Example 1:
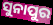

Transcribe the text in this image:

ସୁନାପୁର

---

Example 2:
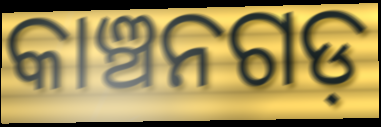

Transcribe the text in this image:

କାଞ୍ଚନଗଡ଼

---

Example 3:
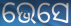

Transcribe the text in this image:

ଭେସେ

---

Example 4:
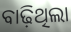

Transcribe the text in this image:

ବାଢ଼ିଥିଲା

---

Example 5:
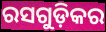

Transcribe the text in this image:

ରସଗୁଡ଼ିକର